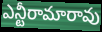
ఎన్టీరామారావు